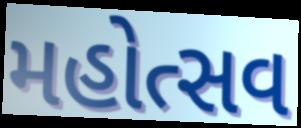
મહોત્સવ